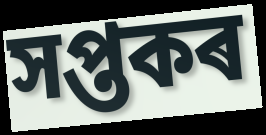
সপ্তকৰ